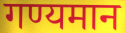
गण्यमान